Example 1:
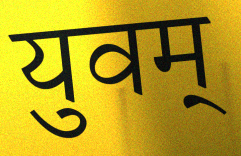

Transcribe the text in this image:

युवम्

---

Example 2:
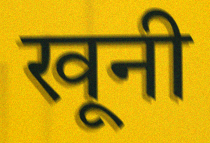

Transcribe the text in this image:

खूनी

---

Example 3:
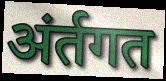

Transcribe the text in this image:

अंर्तगत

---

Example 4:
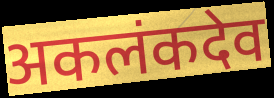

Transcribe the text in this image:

अकलंकदेव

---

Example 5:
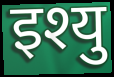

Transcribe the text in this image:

इश्यु